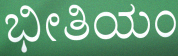
ಭೀತಿಯಂ